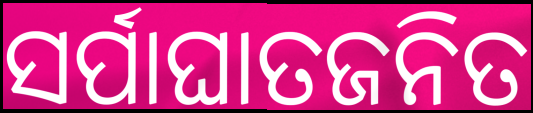
ସର୍ପାଘାତଜନିତ